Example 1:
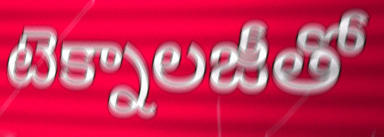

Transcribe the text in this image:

టెక్నాలజీతో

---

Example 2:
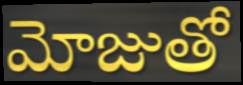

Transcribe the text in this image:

మోజుతో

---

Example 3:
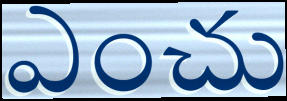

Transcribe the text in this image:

ఎంచు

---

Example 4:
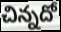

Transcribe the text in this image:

చిన్నదో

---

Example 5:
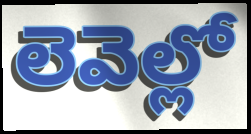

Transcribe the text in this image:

లెవెల్లో